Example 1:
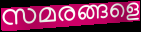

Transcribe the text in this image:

സമരങ്ങളെ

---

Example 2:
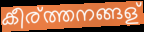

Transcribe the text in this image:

കീര്ത്തനങ്ങള്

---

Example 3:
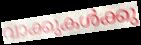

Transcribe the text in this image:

വാക്കുകൾക്കു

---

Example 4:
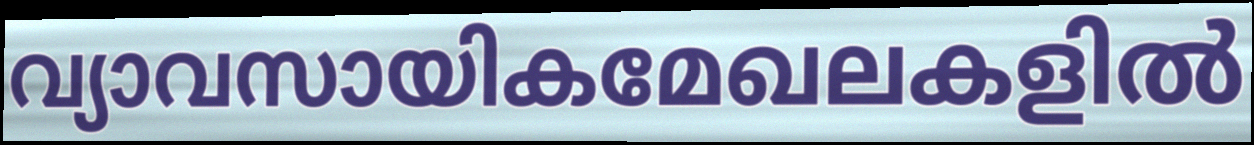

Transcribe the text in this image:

വ്യാവസായികമേഖലകളിൽ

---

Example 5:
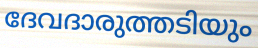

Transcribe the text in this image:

ദേവദാരുത്തടിയും